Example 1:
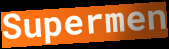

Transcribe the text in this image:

Supermen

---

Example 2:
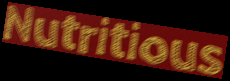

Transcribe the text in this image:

Nutritious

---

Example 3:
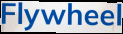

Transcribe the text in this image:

Flywheel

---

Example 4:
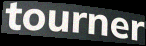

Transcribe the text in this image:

tourner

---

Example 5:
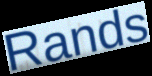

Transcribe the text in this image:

Rands